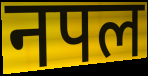
नपल